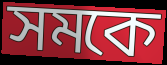
সমকে